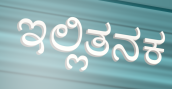
ಇಲ್ಲಿತನಕ